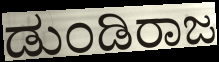
ಡುಂಡಿರಾಜ